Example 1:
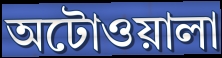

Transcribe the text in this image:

অটোওয়ালা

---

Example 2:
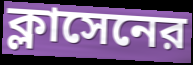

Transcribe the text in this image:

ক্লাসেনের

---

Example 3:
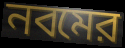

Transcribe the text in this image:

নবমের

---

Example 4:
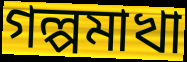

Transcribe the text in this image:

গল্পমাখা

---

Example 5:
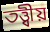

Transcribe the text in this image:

তত্ত্বীয়